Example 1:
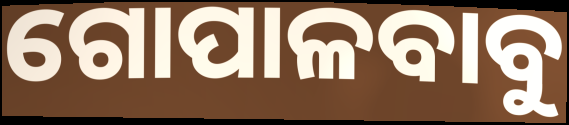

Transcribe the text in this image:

ଗୋପାଳବାବୁ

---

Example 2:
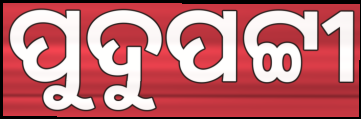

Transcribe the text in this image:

ପୁଦୁପଟ୍ଟୀ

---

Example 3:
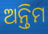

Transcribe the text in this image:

ଅନ୍ତିମ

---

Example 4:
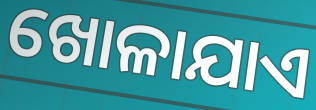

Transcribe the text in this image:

ଖୋଳାଯାଏ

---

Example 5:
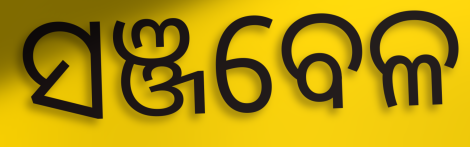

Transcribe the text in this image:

ସଞ୍ଜବେଳ